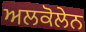
ਅਲਕੋਲੇਨ